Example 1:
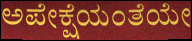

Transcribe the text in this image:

ಅಪೇಕ್ಷೆಯಂತೆಯೇ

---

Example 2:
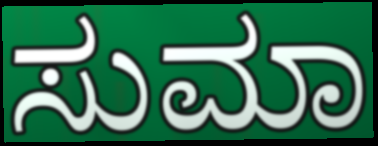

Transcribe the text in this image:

ಸುಮಾ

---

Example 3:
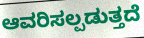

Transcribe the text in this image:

ಆವರಿಸಲ್ಪಡುತ್ತದೆ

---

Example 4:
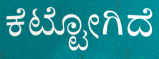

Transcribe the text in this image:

ಕೆಟ್ಟೋಗಿದೆ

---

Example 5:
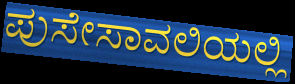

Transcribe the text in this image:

ಪುಸೇಸಾವಲಿಯಲ್ಲಿ